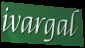
ivargal